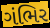
ગંભિર